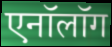
एनॉलॉग